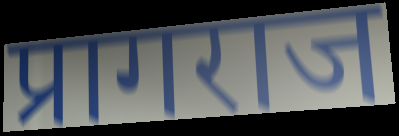
प्रागराज